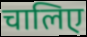
चालिए